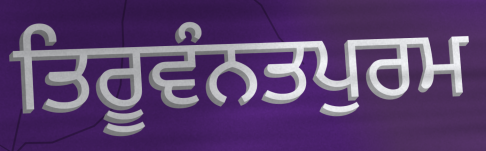
ਤਿਰੂਵੰਨਤਪੁਰਮ